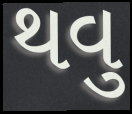
થવુ